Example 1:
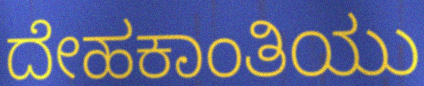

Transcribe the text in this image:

ದೇಹಕಾಂತಿಯು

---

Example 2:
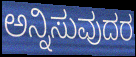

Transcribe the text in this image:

ಅನ್ನಿಸುವುದರ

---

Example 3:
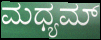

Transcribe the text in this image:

ಮಧ್ಯಮ್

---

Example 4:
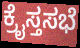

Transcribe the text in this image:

ಕ್ರೈಸ್ತಸಭೆ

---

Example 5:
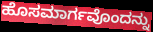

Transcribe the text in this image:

ಹೊಸಮಾರ್ಗವೊಂದನ್ನು